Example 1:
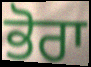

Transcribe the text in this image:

ਭੋਰਾ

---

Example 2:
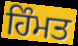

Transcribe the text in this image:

ਹਿੰਮਤ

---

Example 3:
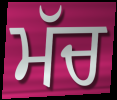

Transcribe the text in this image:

ਮੱਚ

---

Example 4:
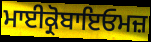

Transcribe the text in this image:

ਮਾਈਕ੍ਰੋਬਾਇਓਮਜ਼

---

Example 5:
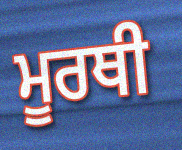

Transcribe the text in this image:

ਮੂਰਥੀ